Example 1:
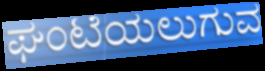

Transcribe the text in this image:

ಘಂಟೆಯಲುಗುವ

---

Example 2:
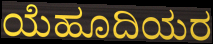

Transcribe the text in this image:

ಯೆಹೂದಿಯರ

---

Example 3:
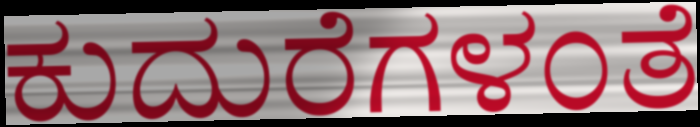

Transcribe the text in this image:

ಕುದುರೆಗಳಂತೆ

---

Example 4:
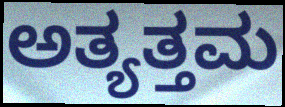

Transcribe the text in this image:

ಅತ್ಯತ್ತಮ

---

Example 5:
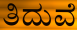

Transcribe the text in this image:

ತಿದುವೆ